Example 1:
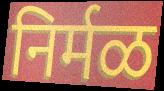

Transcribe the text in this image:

निर्मळ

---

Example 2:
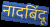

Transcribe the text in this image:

नादबिंदू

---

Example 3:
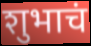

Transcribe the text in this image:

शुभाचं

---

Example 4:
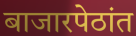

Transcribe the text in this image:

बाजारपेठांत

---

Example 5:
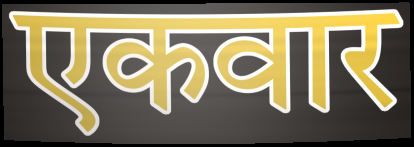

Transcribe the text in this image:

एकवार